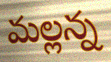
మల్లన్న